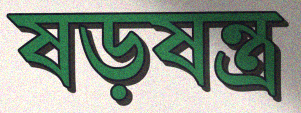
ষড়ষন্ত্র